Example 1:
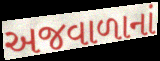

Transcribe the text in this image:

અજવાળાનાં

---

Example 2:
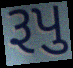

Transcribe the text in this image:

રૂપુ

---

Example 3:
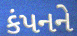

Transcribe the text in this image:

કંપનને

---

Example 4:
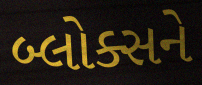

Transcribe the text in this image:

બ્લોક્સને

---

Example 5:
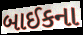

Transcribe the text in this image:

બાઈકના